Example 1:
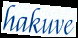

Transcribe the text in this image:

hakuve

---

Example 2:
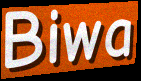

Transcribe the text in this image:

Biwa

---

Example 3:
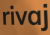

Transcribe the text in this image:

rivaj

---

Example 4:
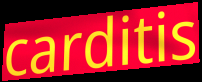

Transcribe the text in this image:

carditis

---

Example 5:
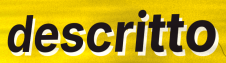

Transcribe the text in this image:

descritto